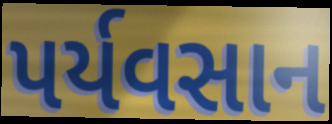
પર્યવસાન